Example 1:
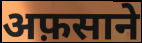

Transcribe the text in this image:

अफ़साने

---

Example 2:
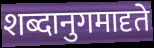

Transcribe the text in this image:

शब्दानुगमादृते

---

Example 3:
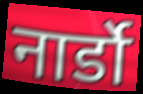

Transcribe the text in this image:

नार्डो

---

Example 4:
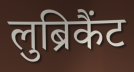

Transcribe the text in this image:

लुब्रिकैंट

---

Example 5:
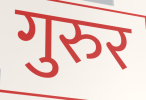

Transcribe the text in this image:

गुरुर